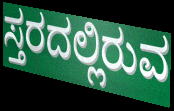
ಸ್ತರದಲ್ಲಿರುವ